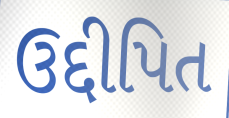
ઉદ્દીપિત